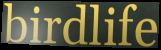
birdlife